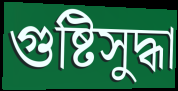
গুষ্টিসুদ্ধা